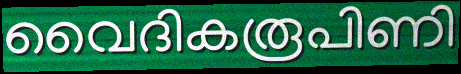
വൈദികരൂപിണി